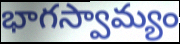
భాగస్వామ్యం